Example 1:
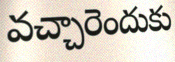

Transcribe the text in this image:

వచ్చారెందుకు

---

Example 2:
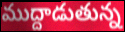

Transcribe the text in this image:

ముద్దాడుతున్న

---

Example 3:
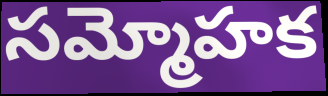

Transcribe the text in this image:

సమ్మోహక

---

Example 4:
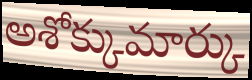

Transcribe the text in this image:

అశోక్కుమార్కు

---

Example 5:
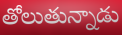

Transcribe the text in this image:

తోలుతున్నాడు